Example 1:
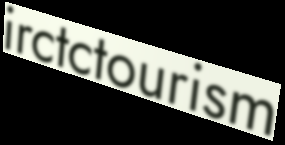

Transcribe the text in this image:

irctctourism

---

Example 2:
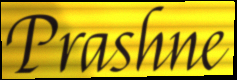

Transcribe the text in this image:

Prashne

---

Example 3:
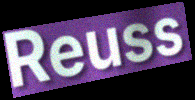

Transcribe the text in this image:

Reuss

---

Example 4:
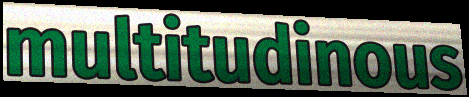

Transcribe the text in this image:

multitudinous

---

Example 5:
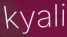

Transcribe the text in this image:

kyali